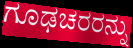
ಗೂಢಚರರನ್ನು